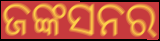
ଜଙ୍କସନର